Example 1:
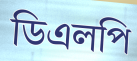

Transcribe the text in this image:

ডিএলপি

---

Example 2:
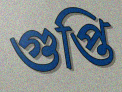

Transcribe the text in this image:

গুপ্তি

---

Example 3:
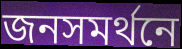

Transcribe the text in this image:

জনসমর্থনে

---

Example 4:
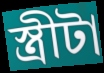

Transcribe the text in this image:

স্ত্রীটা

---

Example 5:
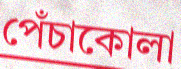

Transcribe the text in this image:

পেঁচাকোলা